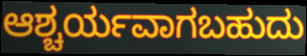
ಆಶ್ಚರ್ಯವಾಗಬಹುದು